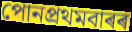
পোনপ্ৰথমবাৰৰ